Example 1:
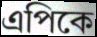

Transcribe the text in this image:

এপিকে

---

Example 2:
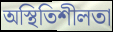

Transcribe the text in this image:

অস্থিতিশীলতা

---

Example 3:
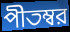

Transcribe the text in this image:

পীতম্বর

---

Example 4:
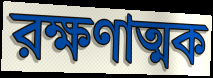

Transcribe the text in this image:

রক্ষণাত্মক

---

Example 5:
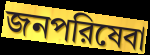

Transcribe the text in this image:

জনপরিষেবা